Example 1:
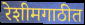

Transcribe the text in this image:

रेशीमगाठीत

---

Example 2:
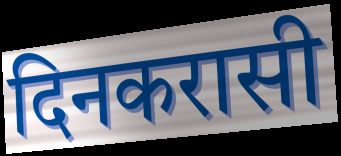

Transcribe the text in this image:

दिनकरासी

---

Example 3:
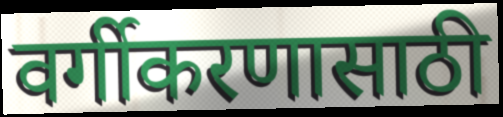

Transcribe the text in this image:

वर्गीकरणासाठी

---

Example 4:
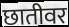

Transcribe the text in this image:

छातीवर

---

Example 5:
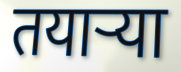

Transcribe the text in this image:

तयाऱ्या